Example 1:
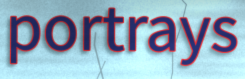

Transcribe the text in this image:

portrays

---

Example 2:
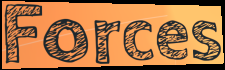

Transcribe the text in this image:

Forces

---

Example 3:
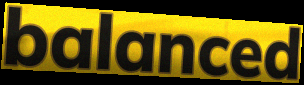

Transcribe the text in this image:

balanced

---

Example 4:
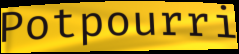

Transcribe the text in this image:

Potpourri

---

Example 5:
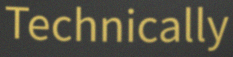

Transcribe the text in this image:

Technically